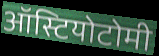
ऑस्टियोटोमी